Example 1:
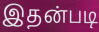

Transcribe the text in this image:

இதன்படி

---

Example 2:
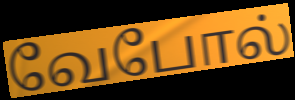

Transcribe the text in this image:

வேபோல்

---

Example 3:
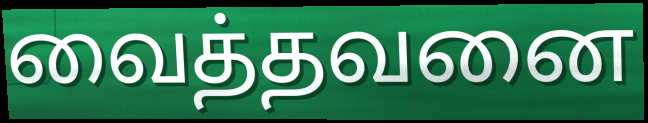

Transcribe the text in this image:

வைத்தவனை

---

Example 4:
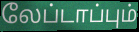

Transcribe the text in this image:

லேப்டாப்பும்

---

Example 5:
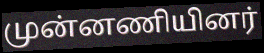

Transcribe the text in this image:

முன்னணியினர்